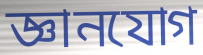
জ্ঞানযোগ